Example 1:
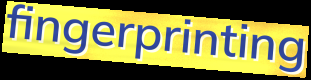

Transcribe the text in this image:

fingerprinting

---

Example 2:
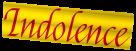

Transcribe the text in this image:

Indolence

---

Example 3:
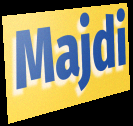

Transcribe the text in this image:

Majdi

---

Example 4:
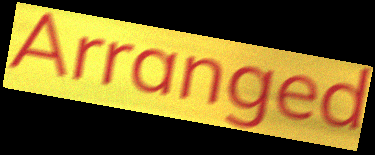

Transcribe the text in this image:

Arranged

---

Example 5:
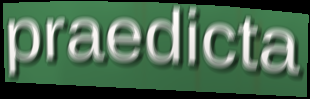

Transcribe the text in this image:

praedicta